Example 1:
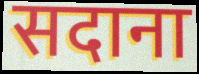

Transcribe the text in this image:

सदाना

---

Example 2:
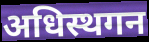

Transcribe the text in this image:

अधिस्थगन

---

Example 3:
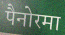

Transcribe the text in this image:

पैनोरमा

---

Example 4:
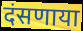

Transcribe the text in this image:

दंसणाया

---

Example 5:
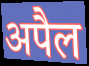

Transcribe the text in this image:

अपैल